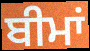
ਬੀਮਾਂ